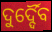
ଦୁର୍ଦ୍ଦୈବ